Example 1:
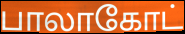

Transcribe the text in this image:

பாலாகோட்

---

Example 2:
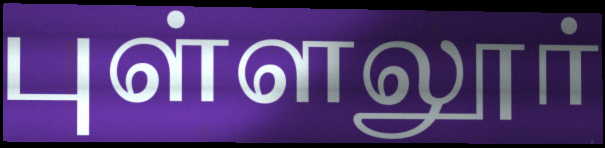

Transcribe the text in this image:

புள்ளலூர்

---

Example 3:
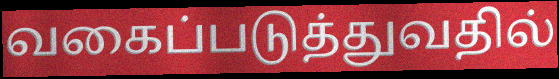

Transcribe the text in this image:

வகைப்படுத்துவதில்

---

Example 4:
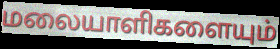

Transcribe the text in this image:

மலையாளிகளையும்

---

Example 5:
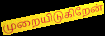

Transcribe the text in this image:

முறையிடுகிறேன்